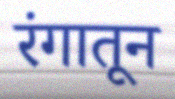
रंगातून